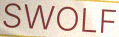
SWOLF